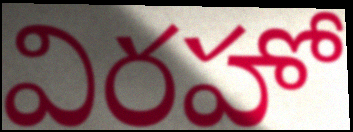
విరహో